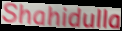
Shahidulla